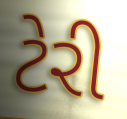
ટેરી